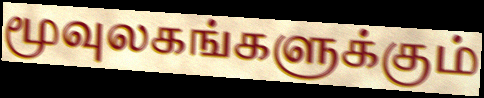
மூவுலகங்களுக்கும்